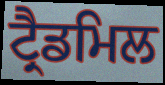
ਟ੍ਰੈਡਮਿਲ